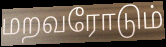
மறவரோடும்